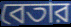
বেতার